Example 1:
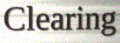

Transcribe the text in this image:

Clearing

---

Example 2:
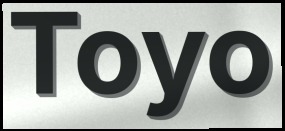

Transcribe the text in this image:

Toyo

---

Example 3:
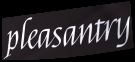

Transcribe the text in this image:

pleasantry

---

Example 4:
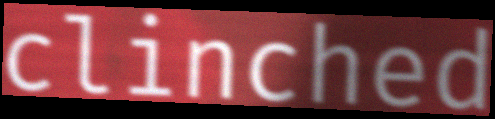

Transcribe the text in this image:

clinched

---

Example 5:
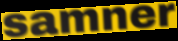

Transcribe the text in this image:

samner